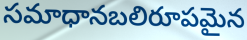
సమాధానబలిరూపమైన